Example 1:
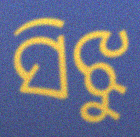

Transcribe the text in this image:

ସିଝୁ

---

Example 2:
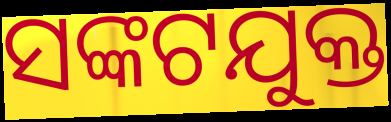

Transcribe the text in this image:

ସଙ୍କଟଯୁକ୍ତ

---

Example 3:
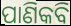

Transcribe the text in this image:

ପାଣିକବି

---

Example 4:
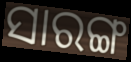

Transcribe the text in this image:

ସାରଙ୍ଗ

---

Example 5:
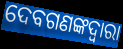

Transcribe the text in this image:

ଦେବଗଣଙ୍କଦ୍ୱାରା